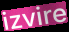
izvire